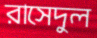
রাসেদুল